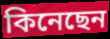
কিনেছেন